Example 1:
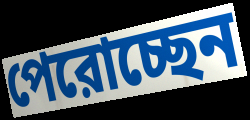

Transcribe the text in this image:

পেরোচ্ছেন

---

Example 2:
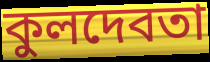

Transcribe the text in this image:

কুলদেবতা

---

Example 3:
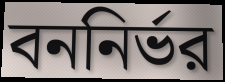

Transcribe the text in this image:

বননির্ভর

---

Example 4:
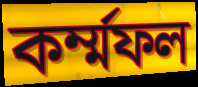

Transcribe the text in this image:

কর্ম্মফল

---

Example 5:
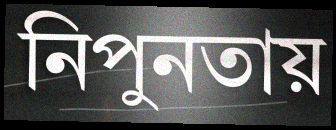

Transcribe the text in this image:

নিপুনতায়